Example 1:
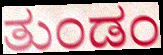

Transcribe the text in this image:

ತುಂಡಂ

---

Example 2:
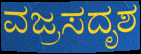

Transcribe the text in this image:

ವಜ್ರಸದೃಶ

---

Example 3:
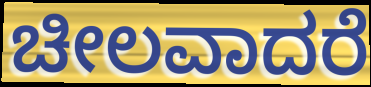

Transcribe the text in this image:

ಚೀಲವಾದರೆ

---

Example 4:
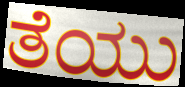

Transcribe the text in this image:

ತೆಯು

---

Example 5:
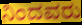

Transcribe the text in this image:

ನಿಂದವರು